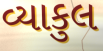
વ્યાકુલ